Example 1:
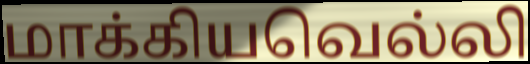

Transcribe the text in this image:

மாக்கியவெல்லி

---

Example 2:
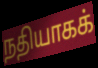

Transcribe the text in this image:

நதியாகக்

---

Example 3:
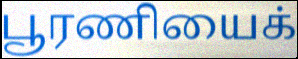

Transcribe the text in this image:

பூரணியைக்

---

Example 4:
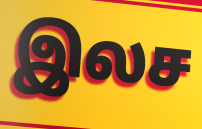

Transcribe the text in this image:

இலச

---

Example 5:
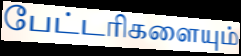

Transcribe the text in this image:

பேட்டரிகளையும்